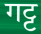
गट्ट